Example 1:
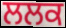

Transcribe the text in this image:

ਲਲਕ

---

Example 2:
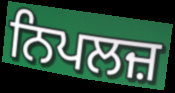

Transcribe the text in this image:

ਨਿਪਲਜ਼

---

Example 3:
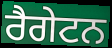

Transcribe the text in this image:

ਰੈਗੇਟਨ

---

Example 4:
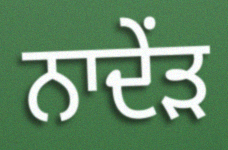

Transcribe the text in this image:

ਨਾਦੇਂੜ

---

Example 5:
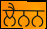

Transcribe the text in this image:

ਲੈਨਨ